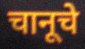
चानूचे